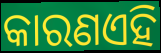
କାରଣଏହି